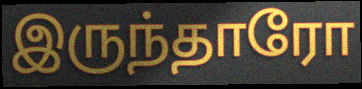
இருந்தாரோ